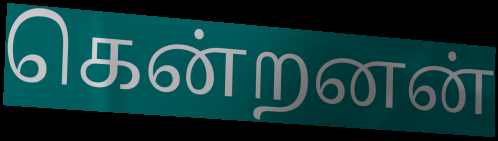
கென்றனன்